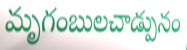
మృగంబులచాడ్పునం